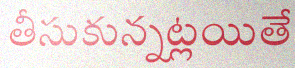
తీసుకున్నట్లయితే